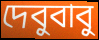
দেবুবাবু